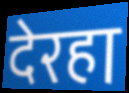
देरहा